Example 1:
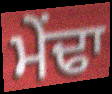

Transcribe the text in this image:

ਮੇਂਢਾ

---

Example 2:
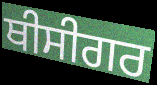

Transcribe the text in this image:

ਥੀਸੀਗਰ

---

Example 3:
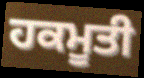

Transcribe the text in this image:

ਹਕਮੂਤੀ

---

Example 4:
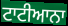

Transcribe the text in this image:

ਟਾਟੀਆਨਾ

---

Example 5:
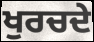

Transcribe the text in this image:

ਖੁਰਚਦੇ